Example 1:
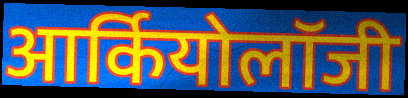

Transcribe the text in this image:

आर्कियोलॉजी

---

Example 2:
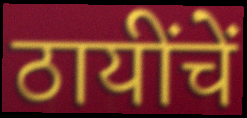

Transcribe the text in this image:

ठायींचें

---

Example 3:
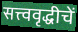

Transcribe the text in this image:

सत्त्ववृद्धीचें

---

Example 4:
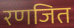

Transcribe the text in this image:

रणजित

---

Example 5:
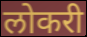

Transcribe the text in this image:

लोकरी